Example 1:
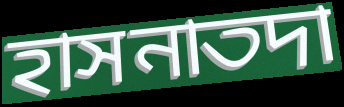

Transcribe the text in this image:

হাসনাতদা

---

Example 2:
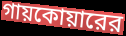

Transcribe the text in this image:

গায়কোয়ারের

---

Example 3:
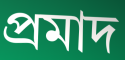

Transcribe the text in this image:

প্রমাদ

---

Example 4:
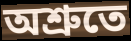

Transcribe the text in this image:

অশ্রুতে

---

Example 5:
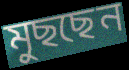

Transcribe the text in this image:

মুছছেন